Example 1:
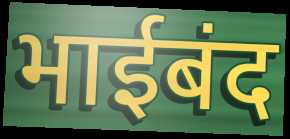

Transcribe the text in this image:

भाईबंद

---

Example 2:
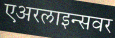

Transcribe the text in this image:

एअरलाइन्सवर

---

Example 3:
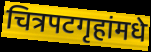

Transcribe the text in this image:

चित्रपटगृहांमधे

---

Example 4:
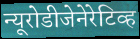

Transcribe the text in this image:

न्यूरोडीजेनेरेटिव्ह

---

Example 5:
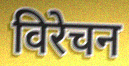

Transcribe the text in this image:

विरेचन